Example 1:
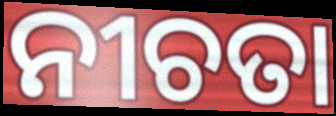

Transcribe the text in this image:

ନୀଚତା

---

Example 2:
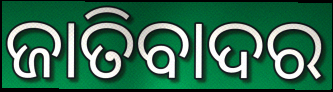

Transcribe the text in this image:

ଜାତିବାଦର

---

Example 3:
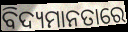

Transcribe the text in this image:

ବିଦ୍ୟମାନତାରେ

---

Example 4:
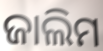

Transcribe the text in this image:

ଜାଲିମ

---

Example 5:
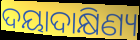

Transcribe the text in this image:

ଦୟାଦାକ୍ଷିଣ୍ୟ